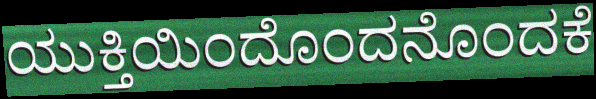
ಯುಕ್ತಿಯಿಂದೊಂದನೊಂದಕೆ